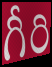
గీరి